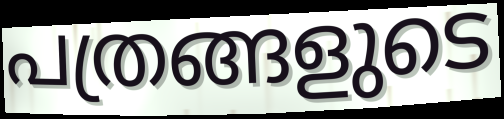
പത്രങ്ങളുടെ